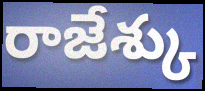
రాజేశ్కు